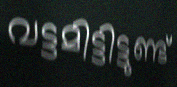
വട്ടമിട്ടിട്ടുണ്ട്